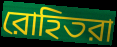
রোহিতরা